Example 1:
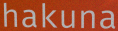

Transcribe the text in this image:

hakuna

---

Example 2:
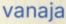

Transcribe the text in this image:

vanaja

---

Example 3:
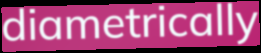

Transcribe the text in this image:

diametrically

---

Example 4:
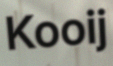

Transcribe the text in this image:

Kooij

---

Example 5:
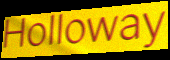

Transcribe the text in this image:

Holloway